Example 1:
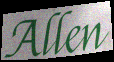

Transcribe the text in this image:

Allen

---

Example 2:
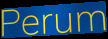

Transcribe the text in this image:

Perum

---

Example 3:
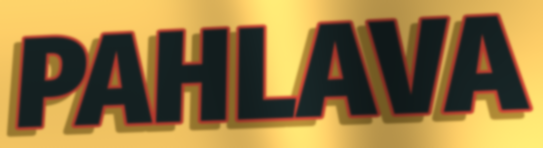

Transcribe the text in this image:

PAHLAVA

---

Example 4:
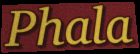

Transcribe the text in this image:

Phala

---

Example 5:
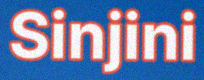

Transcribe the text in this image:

Sinjini